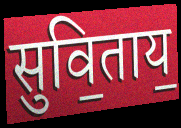
सुवि॒ताय॒